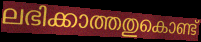
ലഭിക്കാത്തതുകൊണ്ട്